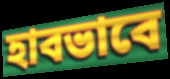
হাবভাবে